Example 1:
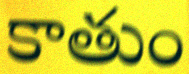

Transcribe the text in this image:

కాతుం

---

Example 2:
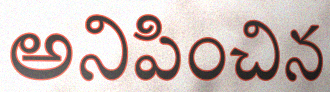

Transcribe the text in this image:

అనిపించిన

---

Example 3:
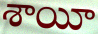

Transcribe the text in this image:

శాయీ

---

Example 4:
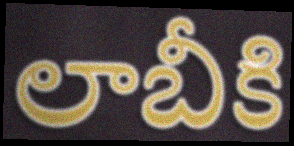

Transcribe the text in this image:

లాబీకి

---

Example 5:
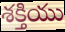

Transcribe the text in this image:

శక్తియు